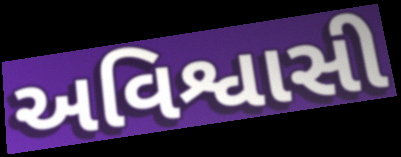
અવિશ્વાસી